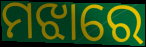
ମଝାରେ